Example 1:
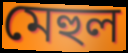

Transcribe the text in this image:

মেহুল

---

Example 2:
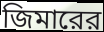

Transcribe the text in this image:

জিমারের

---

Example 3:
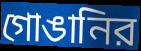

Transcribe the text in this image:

গোঙানির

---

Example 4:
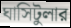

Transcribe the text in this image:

ঘাসিটুলার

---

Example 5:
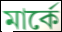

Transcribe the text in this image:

মার্কে